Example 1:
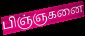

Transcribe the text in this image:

பிஞ்ஞகனை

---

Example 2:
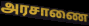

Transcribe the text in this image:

அரசாணை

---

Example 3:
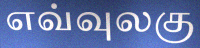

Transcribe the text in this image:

எவ்வுலகு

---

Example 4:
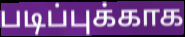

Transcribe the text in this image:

படிப்புக்காக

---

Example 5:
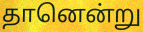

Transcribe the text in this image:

தானென்று